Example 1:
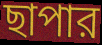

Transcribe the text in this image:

ছাপার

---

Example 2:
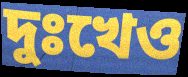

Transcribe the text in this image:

দুঃখেও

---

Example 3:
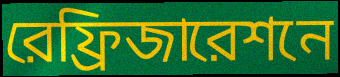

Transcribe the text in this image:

রেফ্রিজারেশনে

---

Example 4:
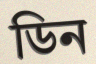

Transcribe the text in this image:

ডিন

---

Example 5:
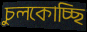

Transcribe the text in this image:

চুলকোচ্ছি